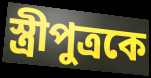
স্ত্রীপুত্রকে